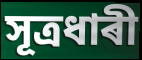
সূত্ৰধাৰী